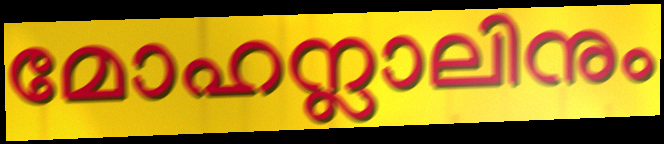
മോഹന്ലാലിനും